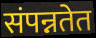
संपन्नतेत